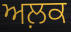
ਅਲ਼ਕ